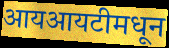
आयआयटीमधून